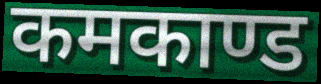
कमकाण्ड